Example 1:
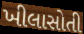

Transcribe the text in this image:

ખીલાસોતી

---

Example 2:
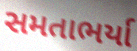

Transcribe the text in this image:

સમતાભર્યા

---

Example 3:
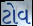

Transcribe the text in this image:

ટોવ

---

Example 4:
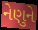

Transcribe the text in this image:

નેણુને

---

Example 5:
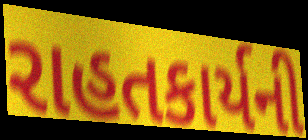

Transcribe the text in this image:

રાહતકાર્યની